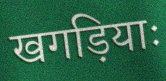
खगड़ियाः